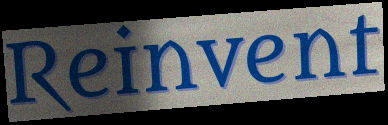
Reinvent